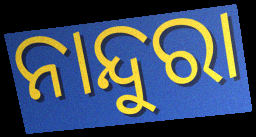
ନାନ୍ଦୁରା